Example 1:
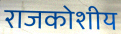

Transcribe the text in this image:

राजकोशीय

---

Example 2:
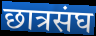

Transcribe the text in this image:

छात्रसंघ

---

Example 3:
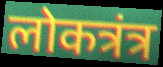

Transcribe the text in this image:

लोकत्रंत्र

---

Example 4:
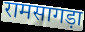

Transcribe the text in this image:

रामसागड़ा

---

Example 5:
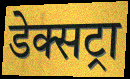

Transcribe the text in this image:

डेक्सट्रा